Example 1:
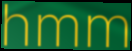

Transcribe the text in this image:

hmm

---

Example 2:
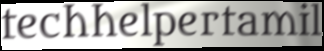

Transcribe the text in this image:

techhelpertamil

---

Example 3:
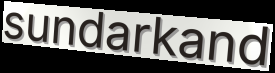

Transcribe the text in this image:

sundarkand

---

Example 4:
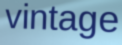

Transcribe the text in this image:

vintage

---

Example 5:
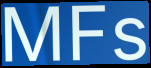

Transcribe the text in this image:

MFs